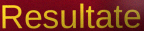
Resultate